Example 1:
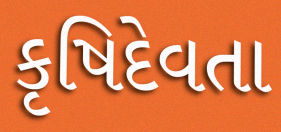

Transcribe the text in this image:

કૃષિદેવતા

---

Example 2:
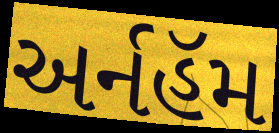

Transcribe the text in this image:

અર્નહૅમ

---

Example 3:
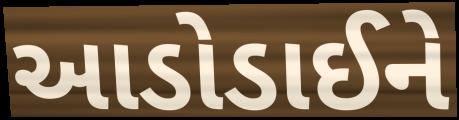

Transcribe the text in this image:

આડોડાઈને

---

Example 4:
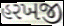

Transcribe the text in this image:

હરખજી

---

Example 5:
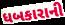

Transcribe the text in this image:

ધબકારાની